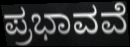
ಪ್ರಭಾವವೆ